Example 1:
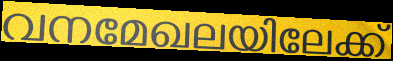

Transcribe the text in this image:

വനമേഖലയിലേക്ക്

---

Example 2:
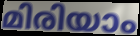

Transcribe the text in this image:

മിരിയാം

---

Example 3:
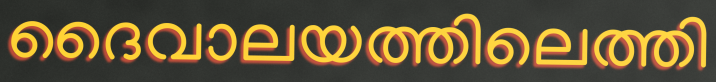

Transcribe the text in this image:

ദൈവാലയത്തിലെത്തി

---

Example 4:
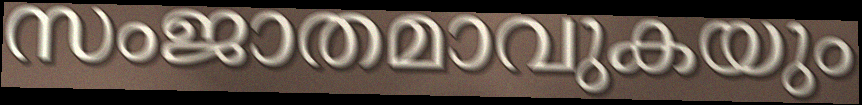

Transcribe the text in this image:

സംജാതമാവുകയും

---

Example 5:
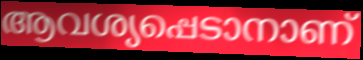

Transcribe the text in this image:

ആവശ്യപ്പെടാനാണ്